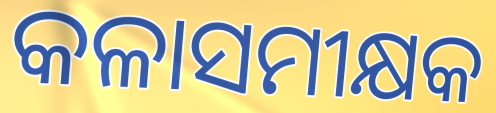
କଳାସମୀକ୍ଷକ